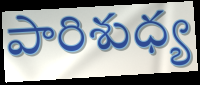
పారిశుధ్య